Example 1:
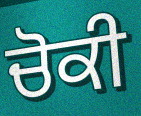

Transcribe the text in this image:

ਚੋਕੀ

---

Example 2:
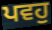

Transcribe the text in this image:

ਪਵਹੁ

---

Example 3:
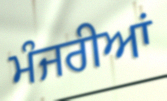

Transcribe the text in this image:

ਮੰਜਰੀਆਂ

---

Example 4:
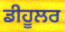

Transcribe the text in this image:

ਡੀਹੂਲਰ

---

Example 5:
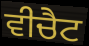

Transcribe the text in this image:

ਵੀਚੈਟ